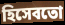
হিসেবতো